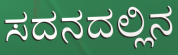
ಸದನದಲ್ಲಿನ